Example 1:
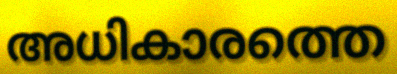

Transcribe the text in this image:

അധികാരത്തെ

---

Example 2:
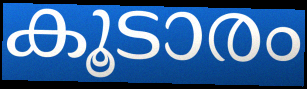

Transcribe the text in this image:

കൂടാരം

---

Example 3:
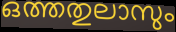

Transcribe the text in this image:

ഒത്തതുലാസും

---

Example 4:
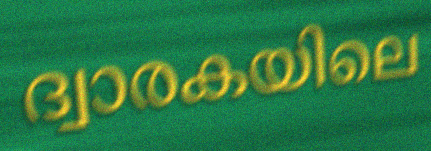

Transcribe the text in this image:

ദ്വാരകയിലെ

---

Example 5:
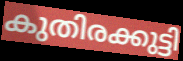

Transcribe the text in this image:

കുതിരക്കുട്ടി